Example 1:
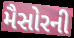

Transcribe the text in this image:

મૈસોરની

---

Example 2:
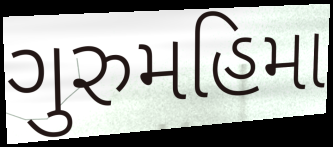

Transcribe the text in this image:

ગુરુમહિમા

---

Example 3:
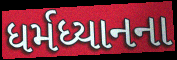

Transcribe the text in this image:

ધર્મધ્યાનના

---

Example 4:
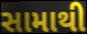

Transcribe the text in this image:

સામાથી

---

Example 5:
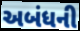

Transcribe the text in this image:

અબંધની